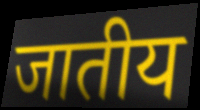
जातीय